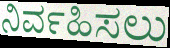
ನಿರ್ವಹಿಸಲು